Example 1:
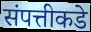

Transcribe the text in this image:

संपत्तीकडे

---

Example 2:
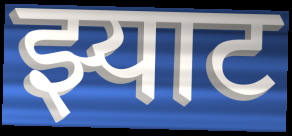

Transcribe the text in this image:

झ्याट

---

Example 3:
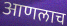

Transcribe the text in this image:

आणलाच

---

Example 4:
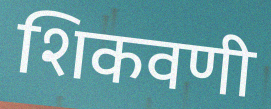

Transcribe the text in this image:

शिकवणी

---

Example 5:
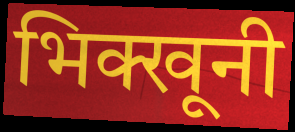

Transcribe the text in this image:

भिक्खूनी